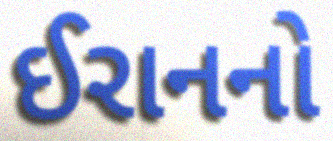
ઈરાનનો